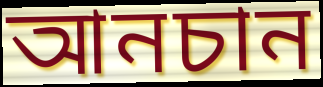
আনচান